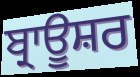
ਬ੍ਰਾਊਸ਼ਰ